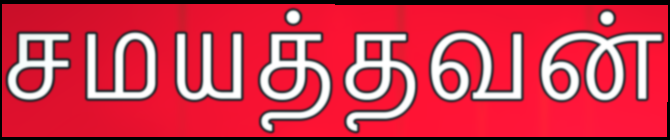
சமயத்தவன்